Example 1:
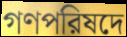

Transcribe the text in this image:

গণপরিষদে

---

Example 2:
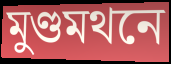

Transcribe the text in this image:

মুণ্ডমথনে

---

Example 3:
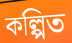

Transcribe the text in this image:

কল্পিত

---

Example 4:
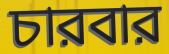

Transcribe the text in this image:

চারবার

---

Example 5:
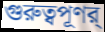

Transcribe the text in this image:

গুরুত্বপূণর্